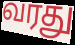
வரது